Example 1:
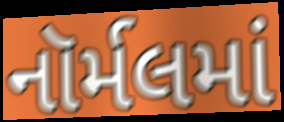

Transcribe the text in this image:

નૉર્મલમાં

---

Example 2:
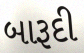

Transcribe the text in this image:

બારૂદી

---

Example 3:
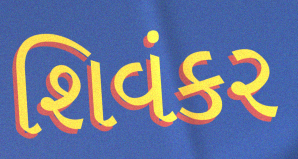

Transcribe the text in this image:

શિવંકર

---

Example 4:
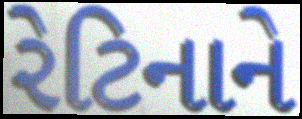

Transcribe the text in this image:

રેટિનાને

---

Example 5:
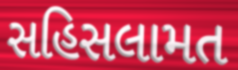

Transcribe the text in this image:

સહિસલામત